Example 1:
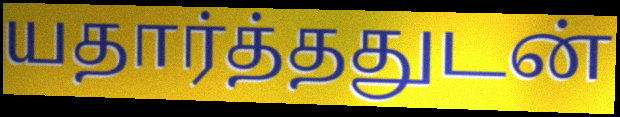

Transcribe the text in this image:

யதார்த்ததுடன்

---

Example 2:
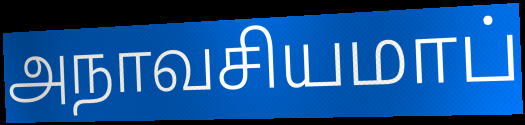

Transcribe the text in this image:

அநாவசியமாப்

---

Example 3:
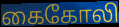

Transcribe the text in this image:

கைகோலி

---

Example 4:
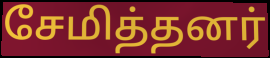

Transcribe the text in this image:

சேமித்தனர்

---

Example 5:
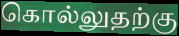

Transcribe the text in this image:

கொல்லுதற்கு